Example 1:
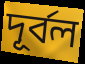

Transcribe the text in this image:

দূৰ্বল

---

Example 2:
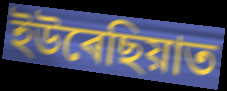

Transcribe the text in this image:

ইউৰেছিয়াত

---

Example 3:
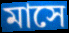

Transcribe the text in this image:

মাসে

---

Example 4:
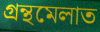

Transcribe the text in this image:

গ্ৰন্থমেলাত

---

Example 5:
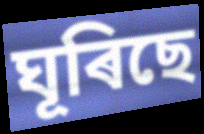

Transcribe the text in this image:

ঘূৰিছে